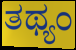
ತಥ್ಯಂ